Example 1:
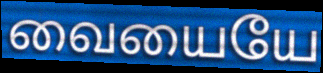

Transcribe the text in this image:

வையையே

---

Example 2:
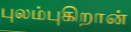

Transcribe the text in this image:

புலம்புகிறான்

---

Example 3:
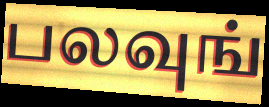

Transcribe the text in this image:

பலவுங்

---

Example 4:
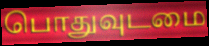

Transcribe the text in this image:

பொதுவுடமை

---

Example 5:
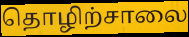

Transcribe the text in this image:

தொழிற்சாலை